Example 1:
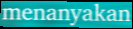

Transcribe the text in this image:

menanyakan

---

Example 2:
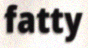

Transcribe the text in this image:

fatty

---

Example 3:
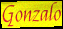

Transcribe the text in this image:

Gonzalo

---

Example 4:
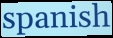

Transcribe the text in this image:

spanish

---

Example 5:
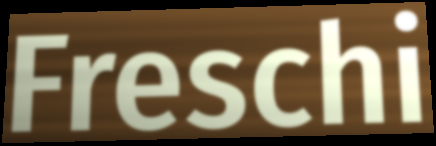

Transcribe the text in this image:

Freschi